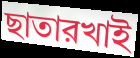
ছাতারখাই